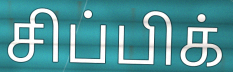
சிப்பிக்